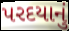
પરદયાનું